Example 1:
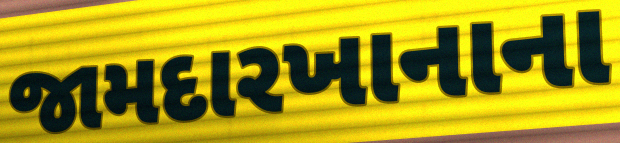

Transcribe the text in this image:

જામદારખાનાના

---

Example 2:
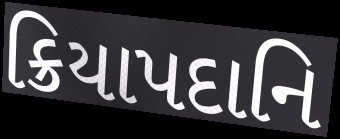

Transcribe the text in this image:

ક્રિયાપદાનિ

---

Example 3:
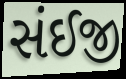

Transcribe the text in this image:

સંઈજી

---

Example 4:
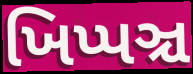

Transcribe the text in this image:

ખિપ્પઞ્ચ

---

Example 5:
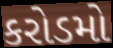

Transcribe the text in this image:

કરોડમો